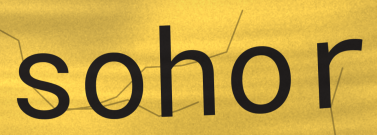
sohor